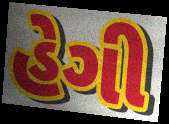
હેગી